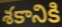
శకానికి